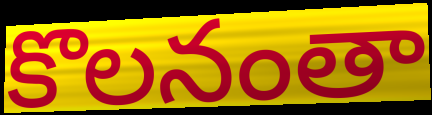
కొలనంతా